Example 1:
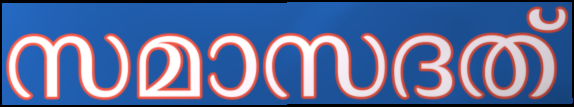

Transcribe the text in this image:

സമാസദത്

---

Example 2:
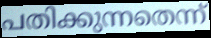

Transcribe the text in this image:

പതിക്കുന്നതെന്ന്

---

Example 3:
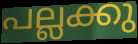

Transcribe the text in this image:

പല്ലക്കു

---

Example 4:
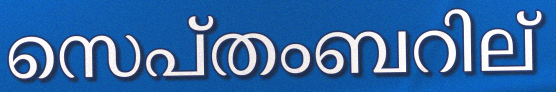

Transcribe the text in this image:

സെപ്തംബറില്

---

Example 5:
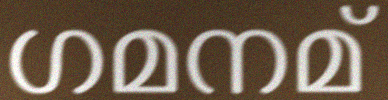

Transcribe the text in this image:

ഗമനമ്